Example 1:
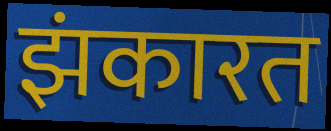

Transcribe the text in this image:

झंकारत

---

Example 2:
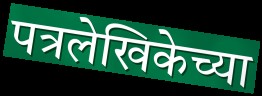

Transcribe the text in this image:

पत्रलेखिकेच्या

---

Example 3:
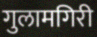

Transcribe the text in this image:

गुलामगिरी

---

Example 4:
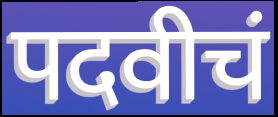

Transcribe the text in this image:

पदवीचं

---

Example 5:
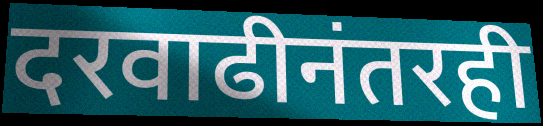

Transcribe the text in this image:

दरवाढीनंतरही